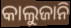
କାଲୁଜାନି